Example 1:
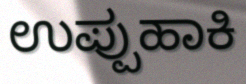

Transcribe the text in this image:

ಉಪ್ಪುಹಾಕಿ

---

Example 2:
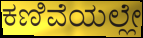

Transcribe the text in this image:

ಕಣಿವೆಯಲ್ಲೇ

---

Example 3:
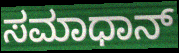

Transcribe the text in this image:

ಸಮಾಧಾನ್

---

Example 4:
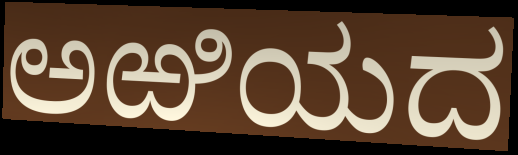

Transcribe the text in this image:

ಅಱಿಯದ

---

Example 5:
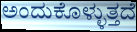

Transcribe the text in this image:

ಅಂದುಕೊಳ್ಳುತ್ತದೆ